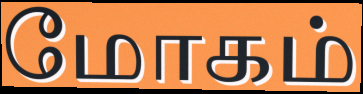
மோகம்